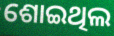
ଶୋଇଥିଲ